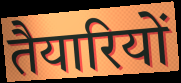
तैयारियों